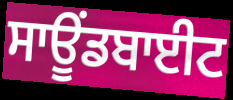
ਸਾਊਂਡਬਾਈਟ